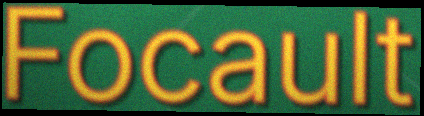
Focault